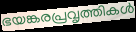
ഭയങ്കരപ്രവൃത്തികൾ